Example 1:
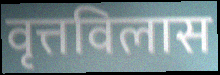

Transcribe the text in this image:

वृत्तविलास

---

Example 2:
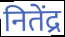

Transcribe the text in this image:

नितेंद्र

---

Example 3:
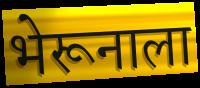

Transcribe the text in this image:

भेरूनाला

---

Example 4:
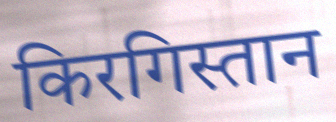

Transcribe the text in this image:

किरगिस्तान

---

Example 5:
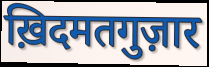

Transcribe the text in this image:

ख़िदमतगुज़ार